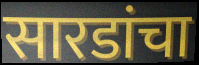
सारडांचा